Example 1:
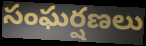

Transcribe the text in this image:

సంఘర్షణలు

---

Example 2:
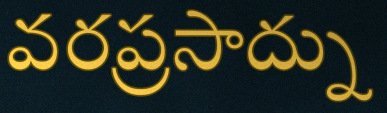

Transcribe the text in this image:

వరప్రసాద్ను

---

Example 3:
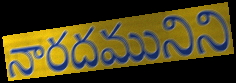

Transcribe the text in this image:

నారదమునిని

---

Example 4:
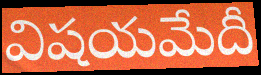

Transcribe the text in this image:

విషయమేదీ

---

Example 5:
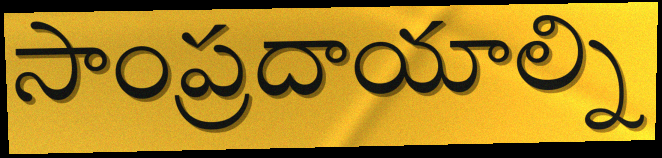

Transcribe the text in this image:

సాంప్రదాయాల్ని